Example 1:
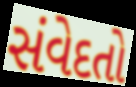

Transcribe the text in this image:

સંવેદતો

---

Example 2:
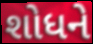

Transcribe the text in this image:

શોધને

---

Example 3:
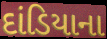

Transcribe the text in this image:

દાંડિયાના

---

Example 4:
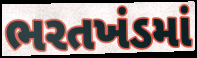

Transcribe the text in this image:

ભરતખંડમાં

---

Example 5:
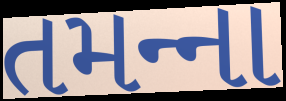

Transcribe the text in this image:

તમન્‍ના